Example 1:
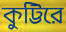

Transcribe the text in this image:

কুট্টিরে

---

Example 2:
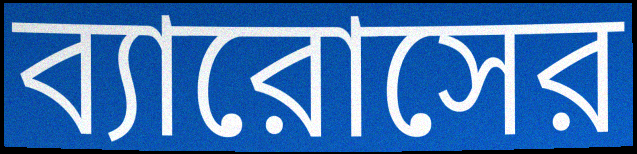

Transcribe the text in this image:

ব্যারোসের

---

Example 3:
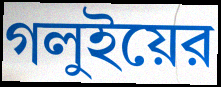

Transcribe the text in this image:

গলুইয়ের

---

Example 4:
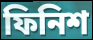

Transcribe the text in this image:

ফিনিশ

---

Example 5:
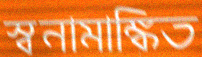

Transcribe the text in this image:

স্বনামাঙ্কিত